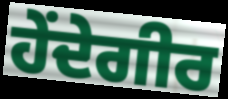
ਹੇਂਦੇਗੀਰ